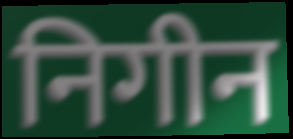
निगीन